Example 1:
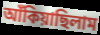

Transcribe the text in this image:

আঁকিয়াছিলাম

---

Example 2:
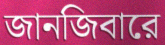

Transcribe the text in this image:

জানজিবারে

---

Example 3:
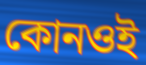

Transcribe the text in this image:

কোনওই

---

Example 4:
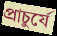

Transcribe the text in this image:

প্রাচুর্যে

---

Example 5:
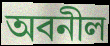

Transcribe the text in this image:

অবনীল